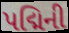
પદ્મિની